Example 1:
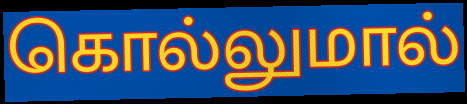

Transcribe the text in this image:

கொல்லுமால்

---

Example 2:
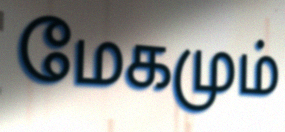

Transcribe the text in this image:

மேகமும்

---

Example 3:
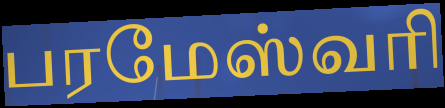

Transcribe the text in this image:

பரமேஸ்வரி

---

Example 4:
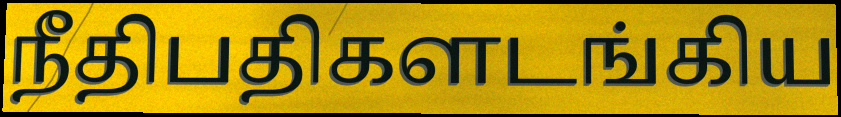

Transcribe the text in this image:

நீதிபதிகளடங்கிய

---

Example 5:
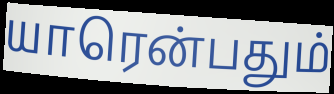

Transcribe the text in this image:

யாரென்பதும்